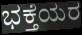
ಭಕ್ತೆಯರ